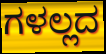
ಗಳಲ್ಲದ